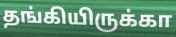
தங்கியிருக்கா